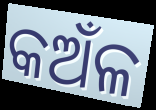
କଅଁଳ